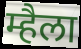
म्हैला